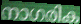
നാഗരിക